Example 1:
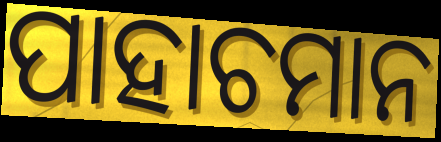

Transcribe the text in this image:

ପାହାଚମାନ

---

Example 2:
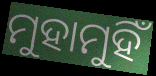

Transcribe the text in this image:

ମୁହାମୁହିଁ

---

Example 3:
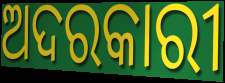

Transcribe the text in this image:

ଅଦରକାରୀ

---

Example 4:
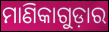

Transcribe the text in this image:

ମାଣିକାଗୁଡ଼ାର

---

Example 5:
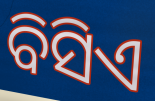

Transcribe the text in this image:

ବିସିଏ